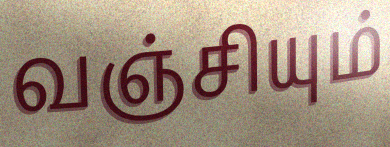
வஞ்சியும்